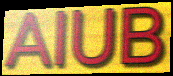
AIUB